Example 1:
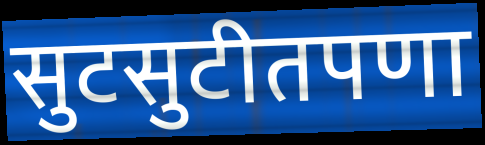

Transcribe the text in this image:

सुटसुटीतपणा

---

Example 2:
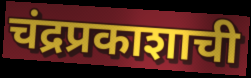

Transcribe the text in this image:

चंद्रप्रकाशाची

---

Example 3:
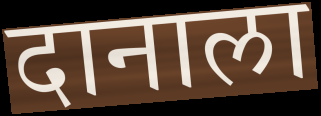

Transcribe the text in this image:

दानाला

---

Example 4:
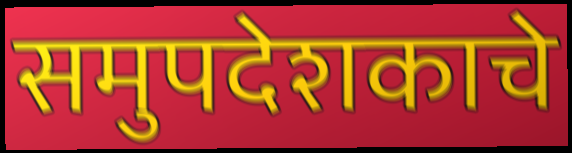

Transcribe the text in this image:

समुपदेशकाचे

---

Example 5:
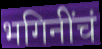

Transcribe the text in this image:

भगिनींचं